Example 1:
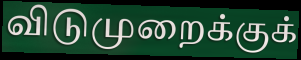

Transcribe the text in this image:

விடுமுறைக்குக்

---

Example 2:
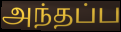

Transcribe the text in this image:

அந்தப்ப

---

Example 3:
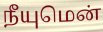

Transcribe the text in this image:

நீயுமென்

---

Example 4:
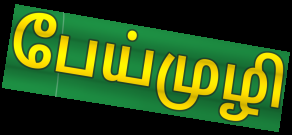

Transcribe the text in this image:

பேய்முழி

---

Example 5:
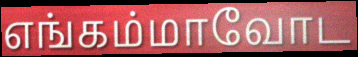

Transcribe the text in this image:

எங்கம்மாவோட